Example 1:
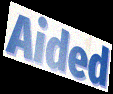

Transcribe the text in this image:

Aided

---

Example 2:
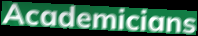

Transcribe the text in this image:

Academicians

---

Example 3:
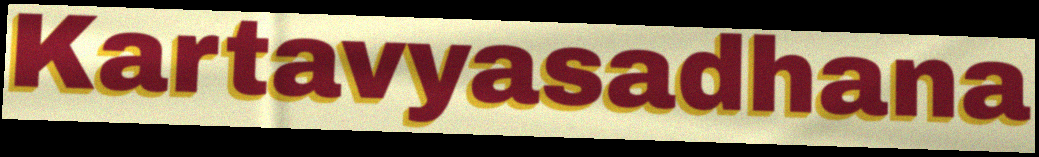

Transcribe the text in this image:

Kartavyasadhana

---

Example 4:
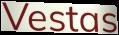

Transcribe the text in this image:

Vestas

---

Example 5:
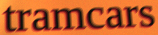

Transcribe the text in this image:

tramcars